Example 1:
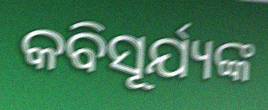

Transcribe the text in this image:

କବିସୂର୍ଯ୍ୟଙ୍କ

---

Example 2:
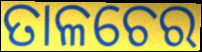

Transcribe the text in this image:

ତାଳଚେର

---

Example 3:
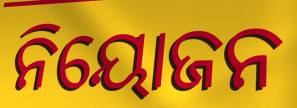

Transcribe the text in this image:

ନିୟୋଜନ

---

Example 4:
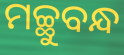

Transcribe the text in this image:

ମଚ୍ଛୁବନ୍ଧ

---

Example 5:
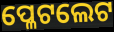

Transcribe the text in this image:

ପ୍ଳେଟଲେଟ